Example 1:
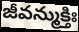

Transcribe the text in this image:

జీవన్ముక్తిః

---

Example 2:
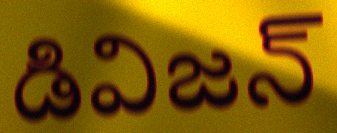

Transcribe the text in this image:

డివిజన్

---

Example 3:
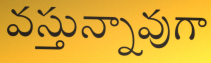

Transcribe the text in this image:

వస్తున్నావుగా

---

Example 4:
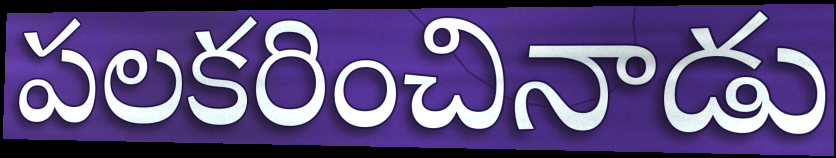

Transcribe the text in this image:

పలకరించినాడు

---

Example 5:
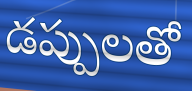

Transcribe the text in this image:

డప్పులతో